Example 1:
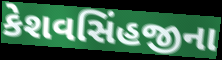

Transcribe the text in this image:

કેશવસિંહજીના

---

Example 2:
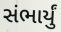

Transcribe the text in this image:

સંભાર્યું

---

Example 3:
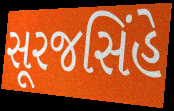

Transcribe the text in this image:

સૂરજસિંહે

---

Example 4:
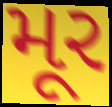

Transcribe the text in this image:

મૂર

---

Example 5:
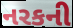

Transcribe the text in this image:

નરકની